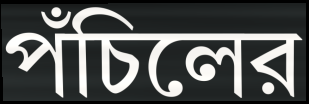
পঁচিলের